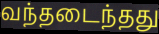
வந்தடைந்தது